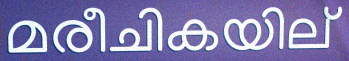
മരീചികയില്